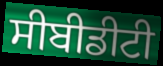
ਸੀਬੀਡੀਟੀ